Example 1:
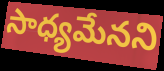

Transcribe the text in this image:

సాధ్యమేనని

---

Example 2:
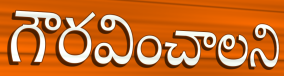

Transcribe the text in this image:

గౌరవించాలని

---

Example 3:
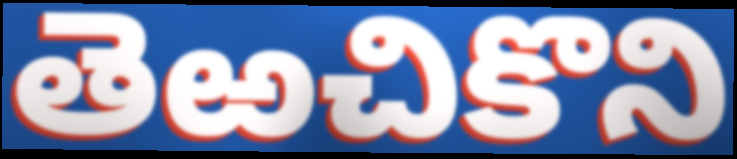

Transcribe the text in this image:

తెఱచికొని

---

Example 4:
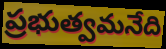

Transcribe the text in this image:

ప్రభుత్వమనేది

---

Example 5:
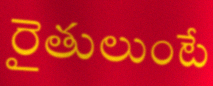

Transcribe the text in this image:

రైతులుంటే